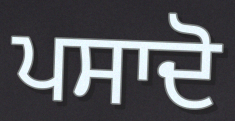
ਪਸਾਦੋ